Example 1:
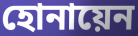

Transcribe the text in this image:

হোনায়েন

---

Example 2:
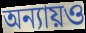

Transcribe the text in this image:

অন্যায়ও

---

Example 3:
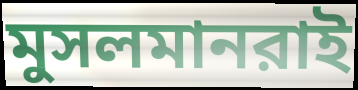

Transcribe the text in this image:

মুসলমানরাই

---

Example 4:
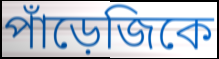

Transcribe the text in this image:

পাঁড়েজিকে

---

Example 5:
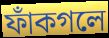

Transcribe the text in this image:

ফাঁকগলে